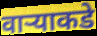
वाऱ्याकडे